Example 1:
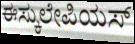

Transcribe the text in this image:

ಈಸ್ಕುಲೇಪಿಯಸ್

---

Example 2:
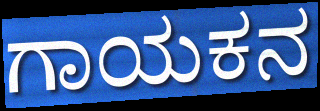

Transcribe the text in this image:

ಗಾಯಕನ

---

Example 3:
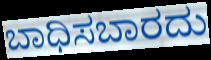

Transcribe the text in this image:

ಬಾಧಿಸಬಾರದು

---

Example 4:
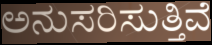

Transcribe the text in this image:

ಅನುಸರಿಸುತ್ತಿವೆ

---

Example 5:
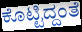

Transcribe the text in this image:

ಕೊಟ್ಟಿದ್ದಂತೆ